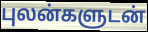
புலன்களுடன்